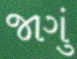
જાગું